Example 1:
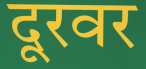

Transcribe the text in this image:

दूरवर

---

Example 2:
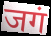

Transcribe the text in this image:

जगं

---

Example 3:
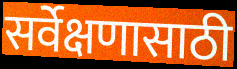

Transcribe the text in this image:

सर्वेक्षणासाठी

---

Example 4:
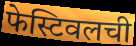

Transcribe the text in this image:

फेस्टिवलची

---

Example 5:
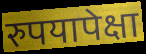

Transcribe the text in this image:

रुपयापेक्षा